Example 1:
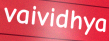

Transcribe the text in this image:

vaividhya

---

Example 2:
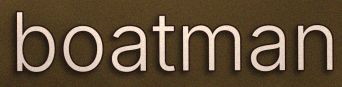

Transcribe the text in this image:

boatman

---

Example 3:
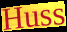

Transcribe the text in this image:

Huss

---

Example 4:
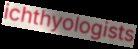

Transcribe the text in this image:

ichthyologists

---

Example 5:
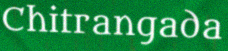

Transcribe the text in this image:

Chitrangada